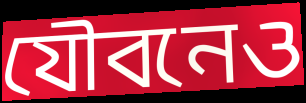
যৌবনেও